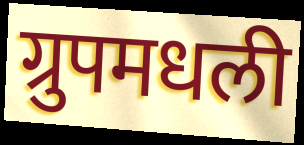
ग्रुपमधली